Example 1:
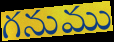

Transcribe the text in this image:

గనుము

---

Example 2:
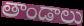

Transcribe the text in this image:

తాండాలు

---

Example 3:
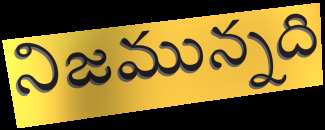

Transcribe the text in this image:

నిజమున్నది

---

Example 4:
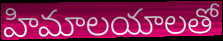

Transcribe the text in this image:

హిమాలయాలతో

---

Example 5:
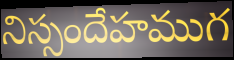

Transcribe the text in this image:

నిస్సందేహముగ